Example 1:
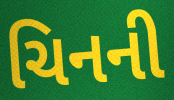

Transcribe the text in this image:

ચિનની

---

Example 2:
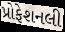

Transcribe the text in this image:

પ્રોફેશનલી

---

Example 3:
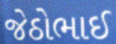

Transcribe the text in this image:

જેઠોભાઈ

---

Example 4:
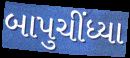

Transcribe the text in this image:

બાપુચીંધ્યા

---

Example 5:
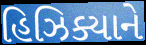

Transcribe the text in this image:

હિઝિક્યાને